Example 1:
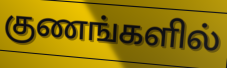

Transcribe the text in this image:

குணங்களில்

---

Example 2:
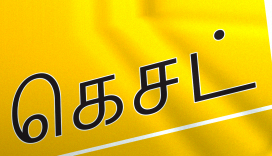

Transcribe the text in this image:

கெசட்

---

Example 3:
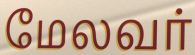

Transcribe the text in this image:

மேலவர்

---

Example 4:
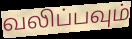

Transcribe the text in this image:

வலிப்பவும்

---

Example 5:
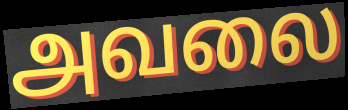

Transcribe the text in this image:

அவலை